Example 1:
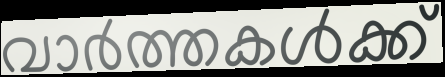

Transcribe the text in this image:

വാർത്തകൾക്ക്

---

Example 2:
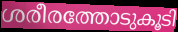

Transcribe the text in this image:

ശരീരത്തോടുകൂടി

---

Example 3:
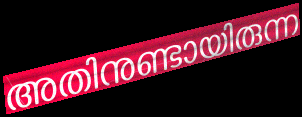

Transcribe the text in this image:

അതിനുണ്ടായിരുന്ന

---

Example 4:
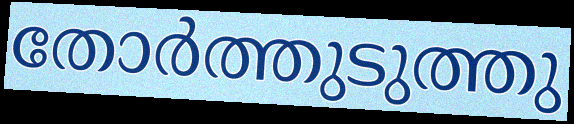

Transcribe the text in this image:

തോർത്തുടുത്തു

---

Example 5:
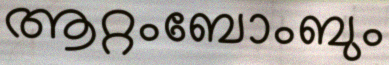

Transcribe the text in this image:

ആറ്റംബോംബും